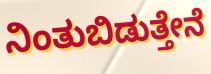
ನಿಂತುಬಿಡುತ್ತೇನೆ